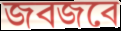
জবজবে